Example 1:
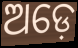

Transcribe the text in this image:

ଅଡ଼େ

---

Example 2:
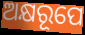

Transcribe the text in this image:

ଅକ୍ଷରୂପେ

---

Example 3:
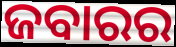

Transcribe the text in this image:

ଜବାରର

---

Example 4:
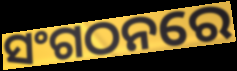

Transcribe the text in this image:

ସଂଗଠନରେ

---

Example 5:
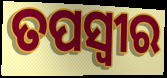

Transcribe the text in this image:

ତପସ୍ଵୀର